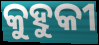
କୁହୁକୀ